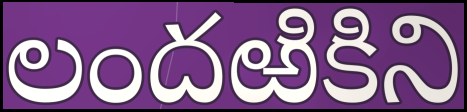
లందఱికిని